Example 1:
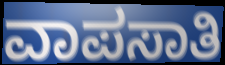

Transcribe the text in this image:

ವಾಪಸಾತಿ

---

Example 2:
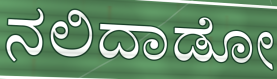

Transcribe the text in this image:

ನಲಿದಾಡೋ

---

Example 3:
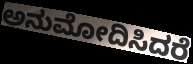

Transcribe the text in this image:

ಅನುಮೋದಿಸಿದರೆ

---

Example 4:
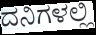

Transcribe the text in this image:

ದನಿಗಳಲ್ಲಿ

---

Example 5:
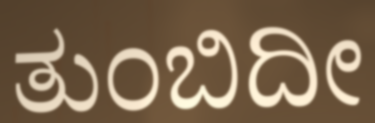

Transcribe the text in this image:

ತುಂಬಿದೀ